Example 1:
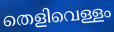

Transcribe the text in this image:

തെളിവെള്ളം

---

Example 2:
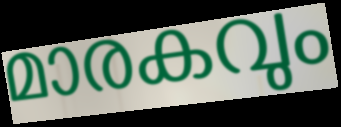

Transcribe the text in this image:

മാരകവും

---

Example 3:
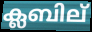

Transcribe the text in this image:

ക്ലബില്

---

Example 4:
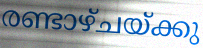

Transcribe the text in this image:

രണ്ടാഴ്ചയ്ക്കു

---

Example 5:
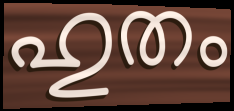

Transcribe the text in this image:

ഹുതം